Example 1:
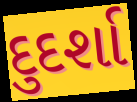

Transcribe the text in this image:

દુદર્શા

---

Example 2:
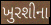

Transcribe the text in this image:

ખુરશીના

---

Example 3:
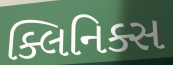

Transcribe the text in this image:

ક્લિનિક્સ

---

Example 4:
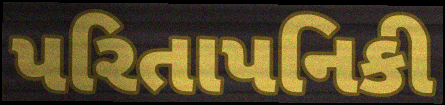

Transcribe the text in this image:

પરિતાપનિકી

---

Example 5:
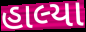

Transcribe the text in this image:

હાલ્યા